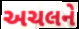
અચલને